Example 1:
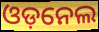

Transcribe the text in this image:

ଓଡ଼ନେଲ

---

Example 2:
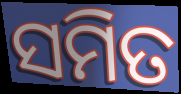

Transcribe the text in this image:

ସମିତ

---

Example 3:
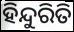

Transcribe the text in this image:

ହିନ୍ଦୁରିତି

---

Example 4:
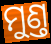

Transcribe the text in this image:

ମୁଣ୍ତ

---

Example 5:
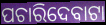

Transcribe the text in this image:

ପଚାରିଦେବାଟା